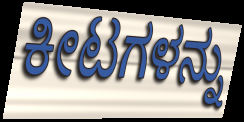
ಕೀಟಗಳನ್ನು